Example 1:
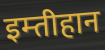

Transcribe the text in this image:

इम्तीहान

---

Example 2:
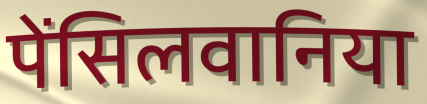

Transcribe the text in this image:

पेंसिलवानिया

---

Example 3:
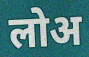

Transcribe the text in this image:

लोअ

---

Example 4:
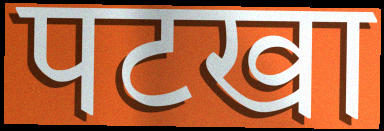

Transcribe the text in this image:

पटखा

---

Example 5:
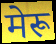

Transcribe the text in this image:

मेरू